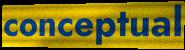
conceptual